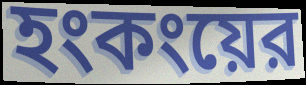
হংকংয়ের